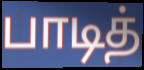
பாடித்